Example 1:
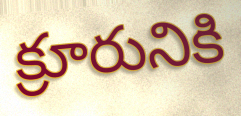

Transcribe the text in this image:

క్రూరునికి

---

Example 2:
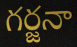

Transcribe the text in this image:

గర్జనా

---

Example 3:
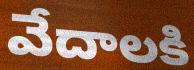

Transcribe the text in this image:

వేదాలకి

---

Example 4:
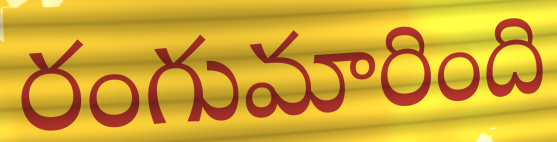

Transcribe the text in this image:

రంగుమారింది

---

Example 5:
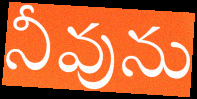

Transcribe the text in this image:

నీవును